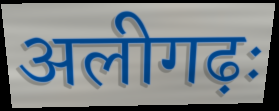
अलीगढ़ः